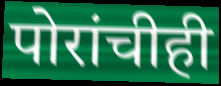
पोरांचीही